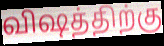
விஷத்திற்கு